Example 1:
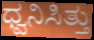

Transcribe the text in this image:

ಧ್ವನಿಸಿತ್ತು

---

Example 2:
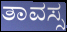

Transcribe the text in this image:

ತಾವಸ್ಸ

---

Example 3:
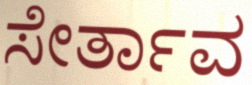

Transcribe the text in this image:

ಸೇರ್ತಾವ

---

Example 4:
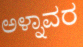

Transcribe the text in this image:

ಅಳ್ನಾವರ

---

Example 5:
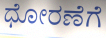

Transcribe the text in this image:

ಧೋರಣೆಗೆ